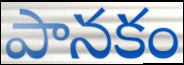
పానకం